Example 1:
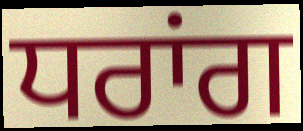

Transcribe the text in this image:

ਧਰਾਂਗ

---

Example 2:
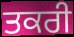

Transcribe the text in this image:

ਤਕਰੀ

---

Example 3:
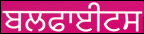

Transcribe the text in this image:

ਬਲਫਾਈਟਸ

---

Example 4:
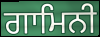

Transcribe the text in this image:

ਗਾਮਿਨੀ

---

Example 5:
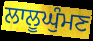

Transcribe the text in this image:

ਲਾਲੂਘੁੰਮਣ